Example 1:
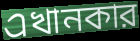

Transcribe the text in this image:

এখানকার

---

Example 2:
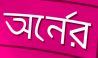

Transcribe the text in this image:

অর্নের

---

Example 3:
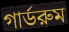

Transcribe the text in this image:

গার্ডরুম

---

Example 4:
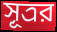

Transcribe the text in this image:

সূত্রর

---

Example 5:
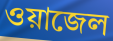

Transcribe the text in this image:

ওয়াজেল